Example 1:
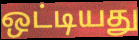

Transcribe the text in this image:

ஒட்டியது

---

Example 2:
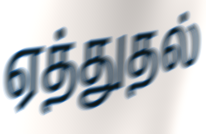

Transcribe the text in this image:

ஏத்துதல்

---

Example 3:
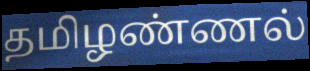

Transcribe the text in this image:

தமிழண்ணல்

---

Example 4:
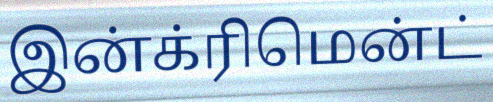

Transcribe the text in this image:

இன்க்ரிமென்ட்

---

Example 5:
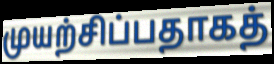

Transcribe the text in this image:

முயற்சிப்பதாகத்